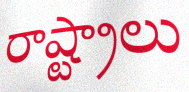
రాష్ట్రాలు